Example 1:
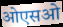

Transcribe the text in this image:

ओएसओ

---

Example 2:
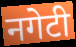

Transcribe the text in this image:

नगेटी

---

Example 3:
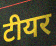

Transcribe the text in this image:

टीयर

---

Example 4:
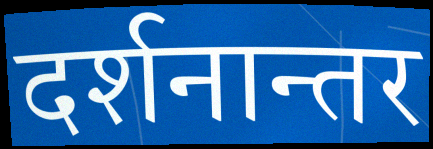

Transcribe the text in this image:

दर्शनान्तर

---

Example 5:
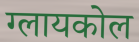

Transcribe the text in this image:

ग्लायकोल